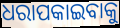
ଧରାପକାଇବାକୁ